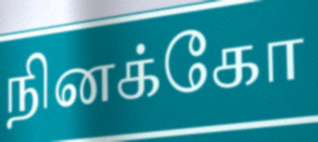
நினக்கோ